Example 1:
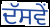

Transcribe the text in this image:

ਦੱਸਵੇਂ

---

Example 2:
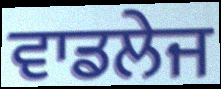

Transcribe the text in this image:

ਵਾਡਲੇਜ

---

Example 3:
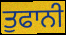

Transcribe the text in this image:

ਤੁਫਾਨੀ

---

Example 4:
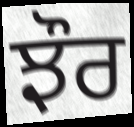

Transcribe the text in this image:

ਝੌਰ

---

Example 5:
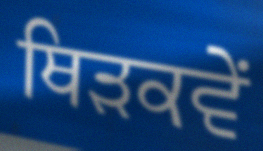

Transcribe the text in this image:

ਥਿੜਕਵੇਂ